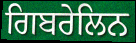
ਗਿਬਰੇਲਿਨ